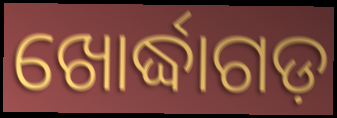
ଖୋର୍ଦ୍ଧାଗଡ଼